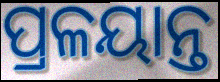
ପ୍ରଳୟାନ୍ତ